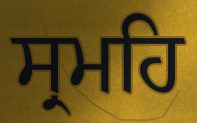
ਸ੍ਰਮਹਿ